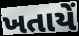
ખતાયેં